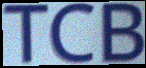
TCB